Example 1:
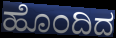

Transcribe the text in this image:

ಹೊಂದಿದ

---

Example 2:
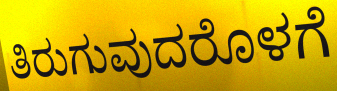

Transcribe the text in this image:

ತಿರುಗುವುದರೊಳಗೆ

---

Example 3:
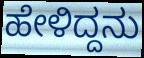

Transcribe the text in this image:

ಹೇಳಿದ್ದನು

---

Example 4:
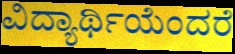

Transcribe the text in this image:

ವಿದ್ಯಾರ್ಥಿಯೆಂದರೆ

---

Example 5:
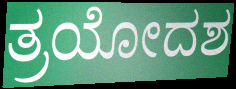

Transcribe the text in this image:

ತ್ರಯೋದಶ